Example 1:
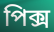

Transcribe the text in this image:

পিক্স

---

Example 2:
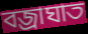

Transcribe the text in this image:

বজ্রাঘাত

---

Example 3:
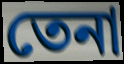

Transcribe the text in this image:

তেনা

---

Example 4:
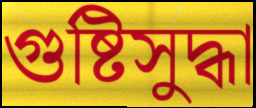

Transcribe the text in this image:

গুষ্টিসুদ্ধা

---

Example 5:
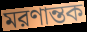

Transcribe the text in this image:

মরণান্তক